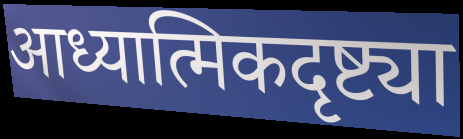
आध्यात्मिकदृष्ट्या